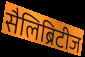
सैलिब्रिटीज